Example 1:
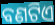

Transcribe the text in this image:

ବଣଟିଏ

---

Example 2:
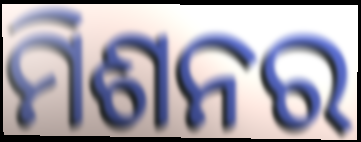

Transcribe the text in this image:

ମିଶନର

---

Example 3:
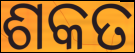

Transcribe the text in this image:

ଶକତ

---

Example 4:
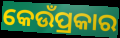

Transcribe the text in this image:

କେଉଁପ୍ରକାର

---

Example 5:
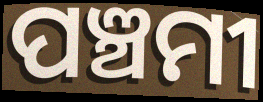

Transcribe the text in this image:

ପଞ୍ଚମୀ